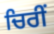
ਚਿਰੀਂ